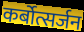
कर्बोत्सर्जन